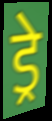
ड्रे